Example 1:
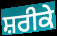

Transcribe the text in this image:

ਸ਼ਰੀਕੇ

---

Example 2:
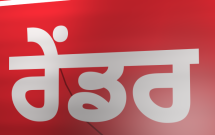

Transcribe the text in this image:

ਰੇੰਡਰ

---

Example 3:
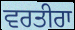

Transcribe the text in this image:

ਵਰਤੀਰਾ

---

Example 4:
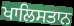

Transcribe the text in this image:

ਖਾਲਿਸਤਾਨ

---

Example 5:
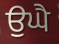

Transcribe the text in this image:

ਉਘੈ